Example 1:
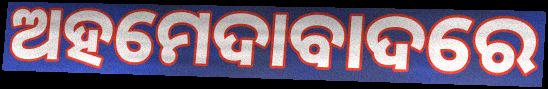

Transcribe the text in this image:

ଅହମେଦାବାଦରେ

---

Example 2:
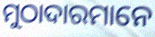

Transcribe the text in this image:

ମୁଠାଦାରମାନେ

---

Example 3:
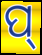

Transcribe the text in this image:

ପ୍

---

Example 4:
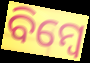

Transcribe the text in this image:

ବିମ୍ବେ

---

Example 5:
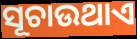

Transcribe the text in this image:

ସୂଚାଉଥାଏ